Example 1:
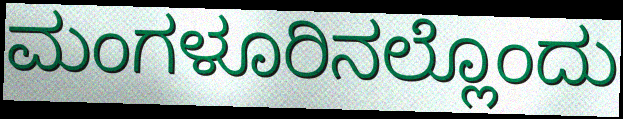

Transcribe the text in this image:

ಮಂಗಳೂರಿನಲ್ಲೊಂದು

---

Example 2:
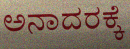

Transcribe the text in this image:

ಅನಾದರಕ್ಕೆ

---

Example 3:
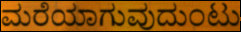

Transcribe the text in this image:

ಮರೆಯಾಗುವುದುಂಟು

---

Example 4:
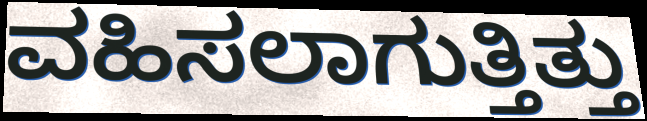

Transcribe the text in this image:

ವಹಿಸಲಾಗುತ್ತಿತ್ತು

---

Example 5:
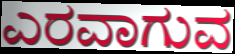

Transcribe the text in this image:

ಎರವಾಗುವ